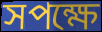
সপক্ষে